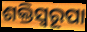
ଶକ୍ତିସ୍ବରୂପା